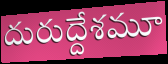
దురుద్దేశమూ